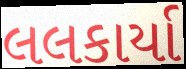
લલકાર્યા